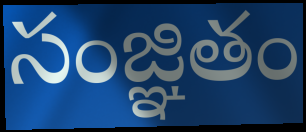
సంజ్ఞితం